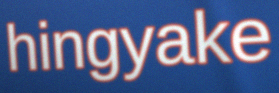
hingyake